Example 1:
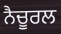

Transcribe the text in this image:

ਨੈਚੂਰਲ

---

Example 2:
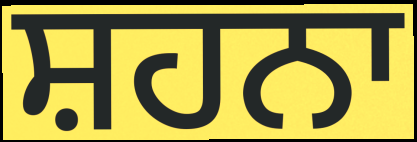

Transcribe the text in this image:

ਸ਼ਹਨਾ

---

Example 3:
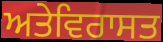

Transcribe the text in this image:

ਅਤੇਵਿਰਾਸਤ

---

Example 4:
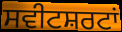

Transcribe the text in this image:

ਸਵੀਟਸ਼ਰਟਾਂ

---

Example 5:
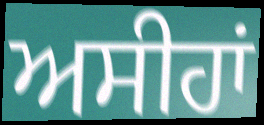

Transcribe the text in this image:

ਅਸੀਹਾਂ